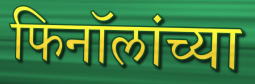
फिनॉलांच्या